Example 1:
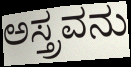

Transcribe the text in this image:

ಅಸ್ತ್ರವನು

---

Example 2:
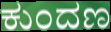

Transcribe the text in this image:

ಕುಂದಣ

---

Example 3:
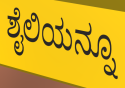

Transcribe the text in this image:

ಶೈಲಿಯನ್ನೂ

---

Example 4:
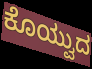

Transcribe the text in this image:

ಕೊಯ್ವುದ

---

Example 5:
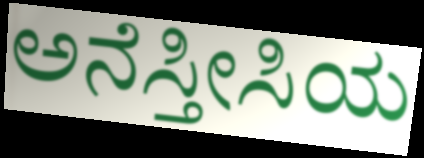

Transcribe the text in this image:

ಅನೆಸ್ತೀಸಿಯ